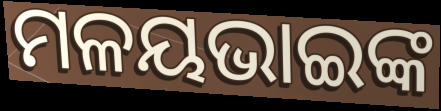
ମଳୟଭାଇଙ୍କ